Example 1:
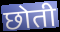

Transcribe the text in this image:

छोती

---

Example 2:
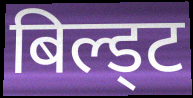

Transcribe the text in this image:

बिल्ड्ट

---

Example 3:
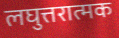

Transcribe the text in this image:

लघुत्तरात्मक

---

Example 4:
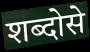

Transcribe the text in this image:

शब्दोसे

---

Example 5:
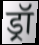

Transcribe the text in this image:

ड्रॉ